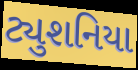
ટ્યુશનિયા